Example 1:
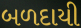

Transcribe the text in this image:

બળદાયી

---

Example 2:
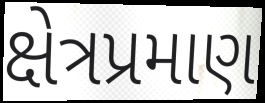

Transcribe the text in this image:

ક્ષેત્રપ્રમાણ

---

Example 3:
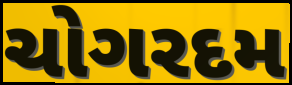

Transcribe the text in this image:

ચોગરદમ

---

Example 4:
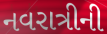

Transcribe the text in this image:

નવરાત્રીની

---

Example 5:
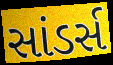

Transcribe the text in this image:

સાંડર્સ